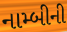
નામ્બીની